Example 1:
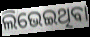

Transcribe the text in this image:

ଲିଭେଇଥିବା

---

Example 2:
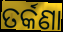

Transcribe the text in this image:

ତର୍କଣା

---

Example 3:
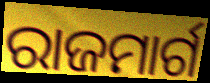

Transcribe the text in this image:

ରାଜମାର୍ଗ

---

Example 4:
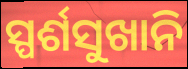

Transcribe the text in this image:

ସ୍ପର୍ଶସୁଖାନି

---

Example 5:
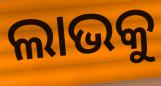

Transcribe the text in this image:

ଲାଭକୁ